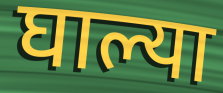
घाल्या